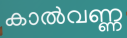
കാൽവണ്ണ